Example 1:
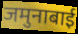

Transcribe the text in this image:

जमुनाबाई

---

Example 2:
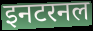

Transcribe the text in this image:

इनटरनल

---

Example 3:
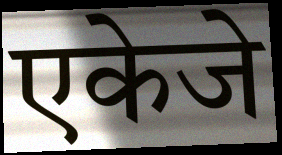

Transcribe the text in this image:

एकेजे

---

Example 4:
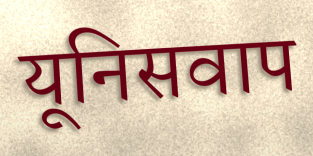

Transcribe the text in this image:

यूनिसवाप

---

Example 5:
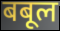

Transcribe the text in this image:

बबूल